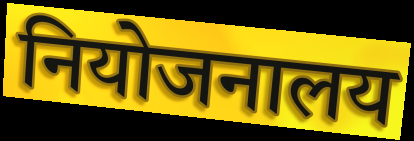
नियोजनालय